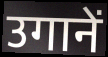
उगानें